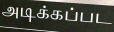
அடிக்கப்பட